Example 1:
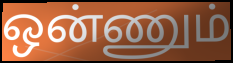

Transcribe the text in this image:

ஒன்ணும்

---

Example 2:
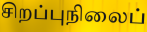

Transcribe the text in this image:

சிறப்புநிலைப்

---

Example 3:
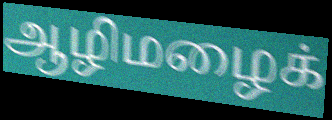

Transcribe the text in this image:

ஆழிமழைக்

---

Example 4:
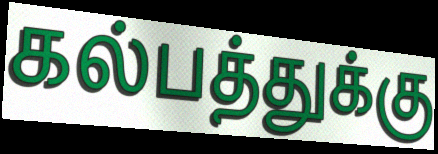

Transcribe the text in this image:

கல்பத்துக்கு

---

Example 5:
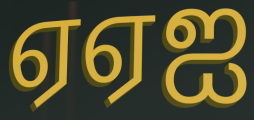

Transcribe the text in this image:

ஏஏஐ